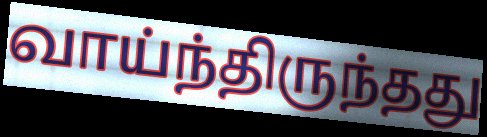
வாய்ந்திருந்தது